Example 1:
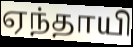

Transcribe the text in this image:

ஏந்தாயி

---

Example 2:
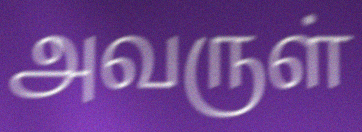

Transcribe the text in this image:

அவருள்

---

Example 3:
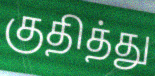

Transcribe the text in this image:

குதித்து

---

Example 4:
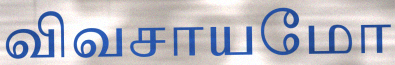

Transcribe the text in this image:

விவசாயமோ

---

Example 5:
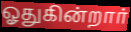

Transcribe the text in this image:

ஓதுகின்றார்